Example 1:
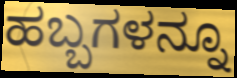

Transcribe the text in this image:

ಹಬ್ಬಗಳನ್ನೂ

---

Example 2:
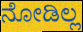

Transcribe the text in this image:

ನೋಡಿಲ್ಲ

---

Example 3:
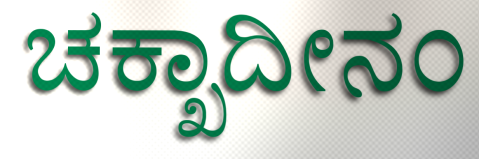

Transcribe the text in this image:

ಚಕ್ಖಾದೀನಂ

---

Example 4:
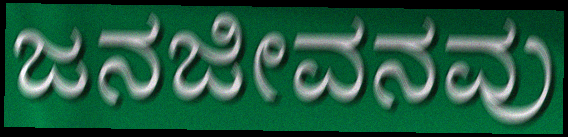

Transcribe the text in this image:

ಜನಜೀವನವು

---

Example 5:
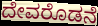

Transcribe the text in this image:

ದೇವರೊಡನೆ